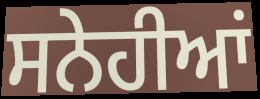
ਸਨੇਹੀਆਂ